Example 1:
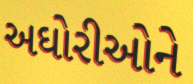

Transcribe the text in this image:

અઘોરીઓને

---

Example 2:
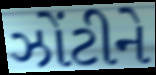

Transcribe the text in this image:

ઝોંટીને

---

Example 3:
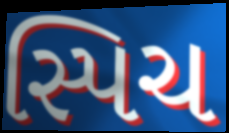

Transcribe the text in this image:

સ્પિચ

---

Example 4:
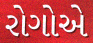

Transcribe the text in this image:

રોગોએ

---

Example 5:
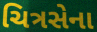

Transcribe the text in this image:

ચિત્રસેના